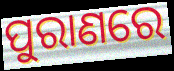
ପୁରାଣରେ